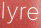
Iyre